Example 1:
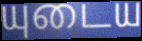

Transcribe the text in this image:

யுடைய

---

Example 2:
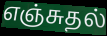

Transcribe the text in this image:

எஞ்சுதல்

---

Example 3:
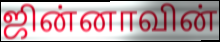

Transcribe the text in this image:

ஜின்னாவின்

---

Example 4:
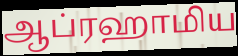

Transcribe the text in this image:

ஆப்ரஹாமிய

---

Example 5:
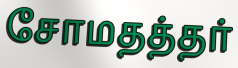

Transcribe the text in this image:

சோமதத்தர்